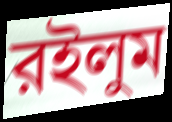
রইলুম